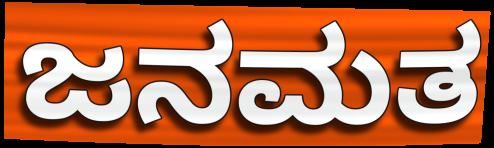
ಜನಮತ